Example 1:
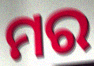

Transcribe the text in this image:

ମର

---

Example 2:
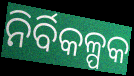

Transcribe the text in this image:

ନିର୍ବିକଳ୍ପକ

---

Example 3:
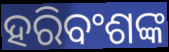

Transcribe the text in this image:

ହରିବଂଶଙ୍କ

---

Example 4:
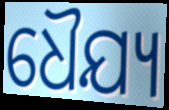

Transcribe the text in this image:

ଧୈଯ୍ଯ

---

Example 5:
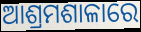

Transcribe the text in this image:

ଆଶ୍ରମଶାଳାରେ